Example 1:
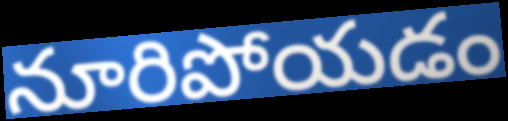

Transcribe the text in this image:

నూరిపోయడం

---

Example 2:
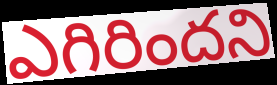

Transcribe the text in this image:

ఎగిరిందని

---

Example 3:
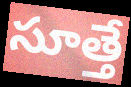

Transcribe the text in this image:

సూత్తే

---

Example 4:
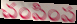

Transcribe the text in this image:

చంపింప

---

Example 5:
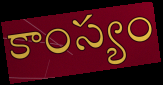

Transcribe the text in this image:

కాంస్యం